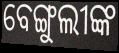
ବେଙ୍ଗୁଲୀଙ୍କ